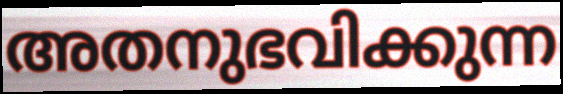
അതനുഭവിക്കുന്ന